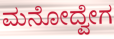
ಮನೋದ್ವೇಗ